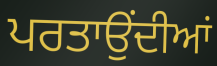
ਪਰਤਾਉਂਦੀਆਂ